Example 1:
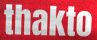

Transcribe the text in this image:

thakto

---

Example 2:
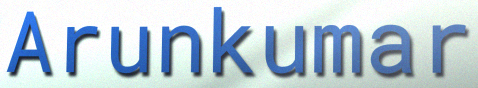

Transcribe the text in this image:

Arunkumar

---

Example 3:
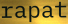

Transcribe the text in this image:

rapat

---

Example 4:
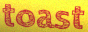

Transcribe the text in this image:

toast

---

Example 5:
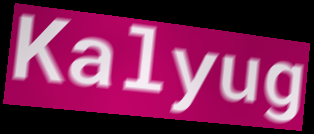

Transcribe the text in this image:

Kalyug